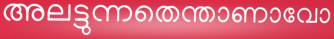
അലട്ടുന്നതെന്താണാവോ